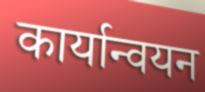
कार्यान्वयन